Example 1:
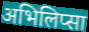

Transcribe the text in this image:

अभिलिप्सा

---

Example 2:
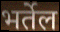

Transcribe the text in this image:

भर्तेल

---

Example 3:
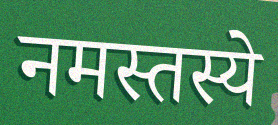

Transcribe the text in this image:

नमस्तस्ये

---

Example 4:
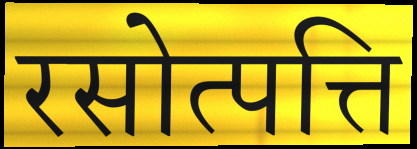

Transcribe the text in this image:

रसोत्पत्ति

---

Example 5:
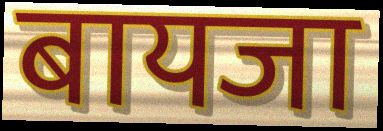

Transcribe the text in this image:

बायजा